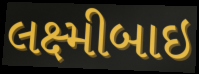
લક્ષ્મીબાઇ